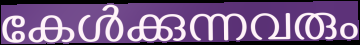
കേൾക്കുന്നവരും